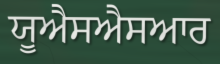
ਯੂਐਸਐਸਆਰ